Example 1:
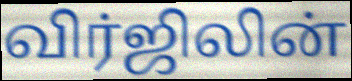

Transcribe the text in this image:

விர்ஜிலின்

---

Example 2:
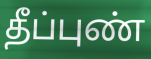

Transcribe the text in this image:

தீப்புண்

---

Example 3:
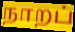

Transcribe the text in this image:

நாறப்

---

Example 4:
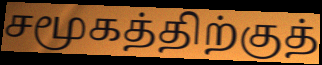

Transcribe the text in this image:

சமூகத்திற்குத்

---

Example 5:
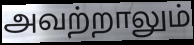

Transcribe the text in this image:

அவற்றாலும்